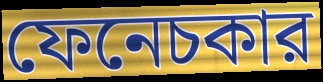
ফেনেচকার